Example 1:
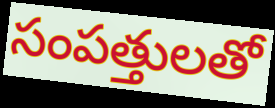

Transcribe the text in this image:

సంపత్తులతో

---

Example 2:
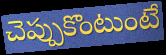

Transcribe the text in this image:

చెప్పుకొంటుంటే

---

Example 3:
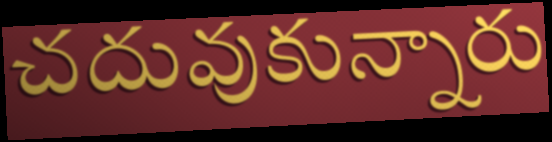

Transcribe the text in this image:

చదువుకున్నారు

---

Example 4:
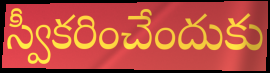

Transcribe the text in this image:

స్వీకరించేందుకు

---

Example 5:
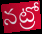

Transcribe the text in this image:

నట్రో